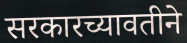
सरकारच्यावतीने